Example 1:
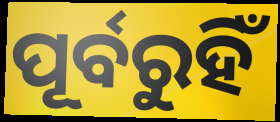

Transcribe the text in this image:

ପୂର୍ବରୁହିଁ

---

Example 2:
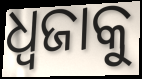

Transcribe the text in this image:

ଧ୍ୱଜାକୁ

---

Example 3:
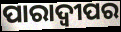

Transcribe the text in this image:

ପାରାଦ୍ବୀପର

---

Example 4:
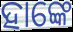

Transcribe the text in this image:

ହାଙ୍କେ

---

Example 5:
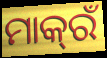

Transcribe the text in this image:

ମାକ୍‌ରଁ